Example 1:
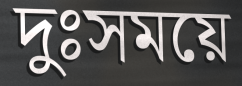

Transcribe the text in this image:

দুঃসময়ে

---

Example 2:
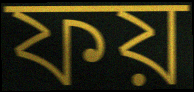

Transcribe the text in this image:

ফয়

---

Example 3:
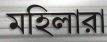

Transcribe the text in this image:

মহিলারা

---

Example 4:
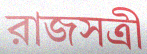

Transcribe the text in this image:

রাজসত্রী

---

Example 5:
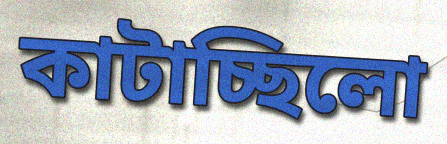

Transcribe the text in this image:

কাটাচ্ছিলো